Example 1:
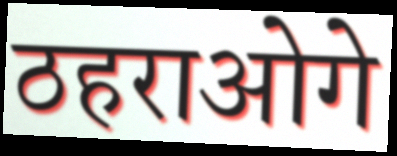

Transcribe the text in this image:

ठहराओगे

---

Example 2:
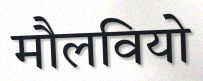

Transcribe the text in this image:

मौलवियो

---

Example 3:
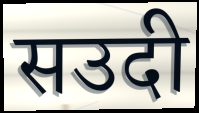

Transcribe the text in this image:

सउदी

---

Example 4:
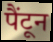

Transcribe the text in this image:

पैंटून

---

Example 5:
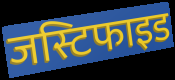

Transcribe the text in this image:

जस्टिफाइड